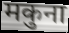
मकुना